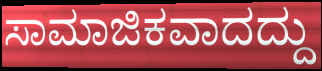
ಸಾಮಾಜಿಕವಾದದ್ದು